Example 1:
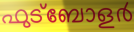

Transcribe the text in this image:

ഫുട്ബോളർ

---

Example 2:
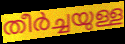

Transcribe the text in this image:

തീർച്ചയുള്ള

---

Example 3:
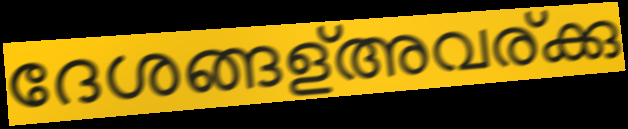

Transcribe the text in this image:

ദേശങ്ങള്അവര്ക്കു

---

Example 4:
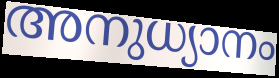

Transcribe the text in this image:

അനുധ്യാനം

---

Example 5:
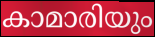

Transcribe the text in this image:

കാമാരിയും